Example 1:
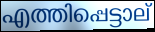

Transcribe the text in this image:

എത്തിപ്പെട്ടാല്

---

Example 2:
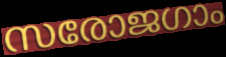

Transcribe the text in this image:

സരോജഗാം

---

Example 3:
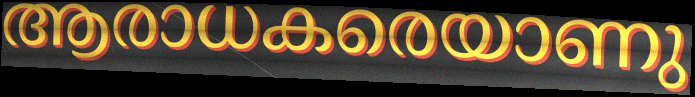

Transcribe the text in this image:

ആരാധകരെയാണു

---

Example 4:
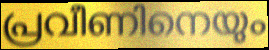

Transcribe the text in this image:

പ്രവീണിനെയും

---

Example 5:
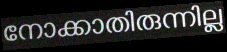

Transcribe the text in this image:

നോക്കാതിരുന്നില്ല